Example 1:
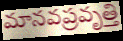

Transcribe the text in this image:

మానవప్రవృత్తి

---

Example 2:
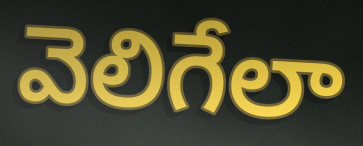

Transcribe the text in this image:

వెలిగేలా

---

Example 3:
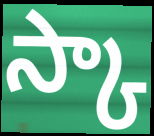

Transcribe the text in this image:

స్కా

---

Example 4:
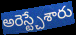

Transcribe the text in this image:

అరెస్ట్చేశారు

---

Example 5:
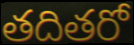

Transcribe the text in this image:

తదితరో